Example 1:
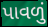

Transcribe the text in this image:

પાવળું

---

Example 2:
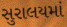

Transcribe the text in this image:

સુરાલયમાં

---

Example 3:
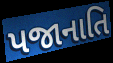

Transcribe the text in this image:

પજાનાતિ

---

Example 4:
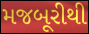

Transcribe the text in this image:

મજબૂરીથી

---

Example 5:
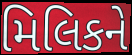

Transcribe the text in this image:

મિલિકને